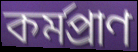
কর্মপ্রাণ